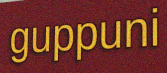
guppuni